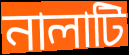
নালাটি